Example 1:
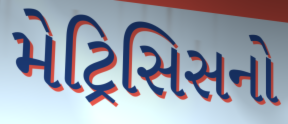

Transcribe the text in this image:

મેટ્રિસિસનો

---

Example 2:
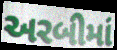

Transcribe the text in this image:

અરબીમાં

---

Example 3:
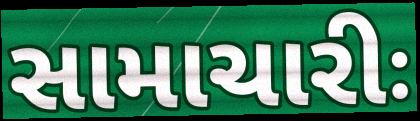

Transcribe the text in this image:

સામાચારીઃ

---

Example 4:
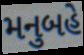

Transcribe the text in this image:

મનુબહે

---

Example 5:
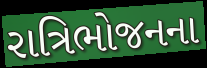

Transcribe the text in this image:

રાત્રિભોજનના